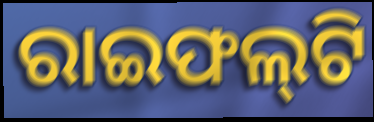
ରାଇଫଲ୍‍ଟି